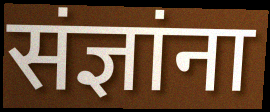
संज्ञांना